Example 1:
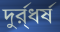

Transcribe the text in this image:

দুর্র্ধর্ষ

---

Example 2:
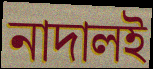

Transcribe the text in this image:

নাদালই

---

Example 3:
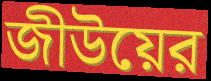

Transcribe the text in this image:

জীউয়ের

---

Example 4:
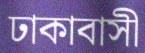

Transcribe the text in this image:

ঢাকাবাসী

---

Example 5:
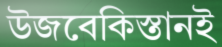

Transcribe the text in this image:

উজবেকিস্তানই